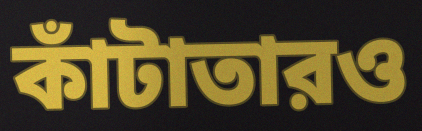
কাঁটাতারও